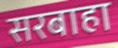
सरबाहा